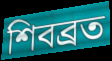
শিবব্রত